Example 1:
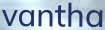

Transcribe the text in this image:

vantha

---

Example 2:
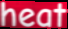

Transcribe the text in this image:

heat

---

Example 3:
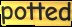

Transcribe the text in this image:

potted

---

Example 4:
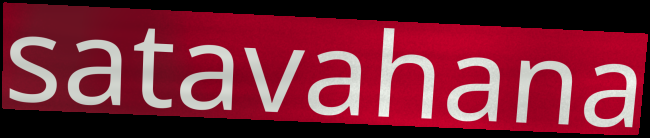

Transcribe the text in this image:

satavahana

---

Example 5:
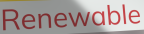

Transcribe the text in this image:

Renewable